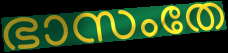
ഭാസംതേ